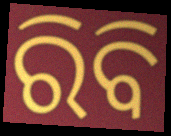
ରିବି